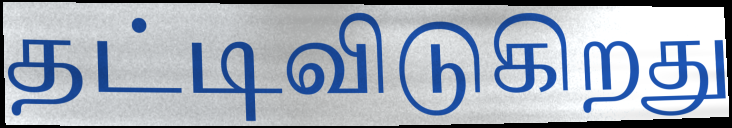
தட்டிவிடுகிறது